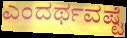
ಎಂದರ್ಥವಷ್ಟೆ